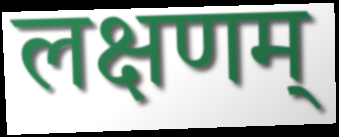
लक्षणम्